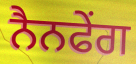
ਨੈਨਫੇਂਗ